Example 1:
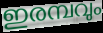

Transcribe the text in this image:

ഇരമ്പവും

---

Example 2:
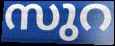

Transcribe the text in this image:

സുറ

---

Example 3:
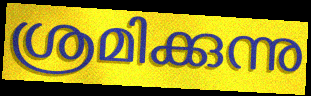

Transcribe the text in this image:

ശ്രമിക്കുന്നു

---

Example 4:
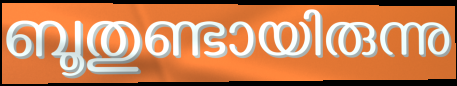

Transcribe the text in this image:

ബൂതുണ്ടായിരുന്നു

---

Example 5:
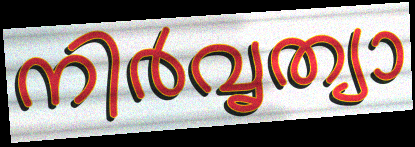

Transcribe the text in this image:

നിർവൃത്യാ